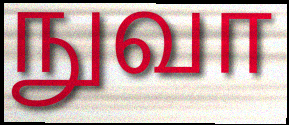
நுவா